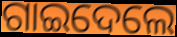
ଗାଇଦେଲେ